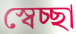
স্বেচ্ছা